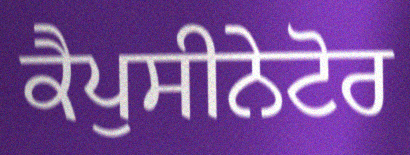
ਕੈਪੁਸੀਨੇਟੋਰ